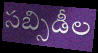
సబ్సిడీల